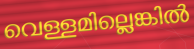
വെള്ളമില്ലെങ്കിൽ